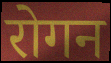
रोगन